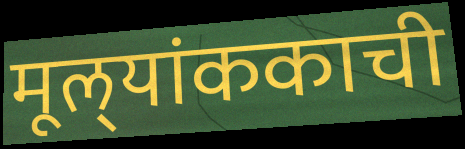
मूल्यांककाची